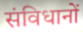
संविधानों